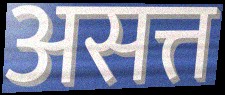
असत्त